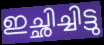
ഇച്ഛിച്ചിട്ടു